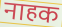
नाहक